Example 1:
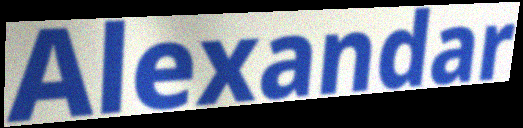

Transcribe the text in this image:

Alexandar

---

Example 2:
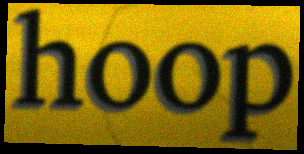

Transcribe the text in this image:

hoop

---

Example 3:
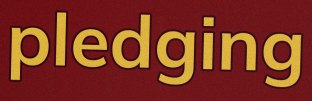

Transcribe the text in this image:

pledging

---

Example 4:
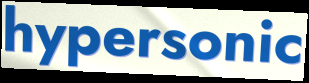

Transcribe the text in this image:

hypersonic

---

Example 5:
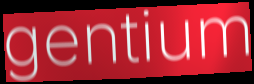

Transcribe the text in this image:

gentium